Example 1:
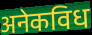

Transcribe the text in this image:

अनेकविध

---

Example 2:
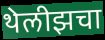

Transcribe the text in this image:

थेलीझचा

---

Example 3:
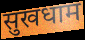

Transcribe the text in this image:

सुखधाम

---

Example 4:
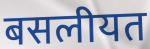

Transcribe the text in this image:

बसलीयत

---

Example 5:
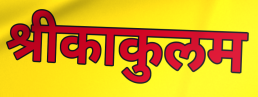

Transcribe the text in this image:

श्रीकाकुलम